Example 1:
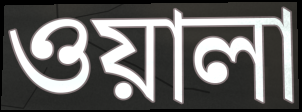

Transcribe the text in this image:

ওয়ালা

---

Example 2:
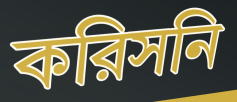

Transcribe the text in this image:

করিসনি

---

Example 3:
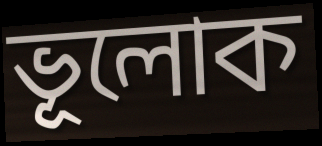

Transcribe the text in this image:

ভূলোক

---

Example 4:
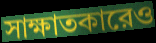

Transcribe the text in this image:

সাক্ষাতকারেও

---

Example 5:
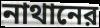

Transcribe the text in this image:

নাথানের